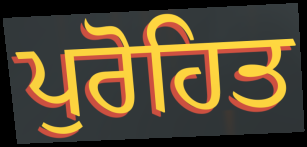
ਪੁਰੋਹਿਤ